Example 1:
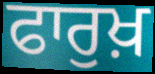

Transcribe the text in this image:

ਫਾਰੁਖ਼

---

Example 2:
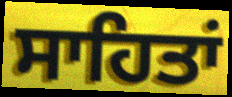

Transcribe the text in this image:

ਸਾਹਿਤਾਂ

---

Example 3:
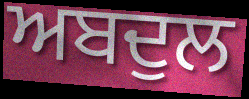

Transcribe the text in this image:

ਅਬਦੁਲ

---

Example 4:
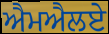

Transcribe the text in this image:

ਐਮਐਲਏ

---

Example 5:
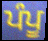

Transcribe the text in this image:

ਪੰਪੂ